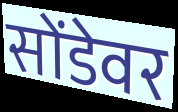
सोंडेवर